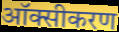
ऑक्सीकरण